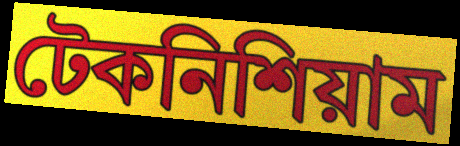
টেকনিশিয়াম